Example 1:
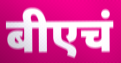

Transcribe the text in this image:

बीएचं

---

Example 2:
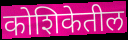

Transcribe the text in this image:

कोशिकेतील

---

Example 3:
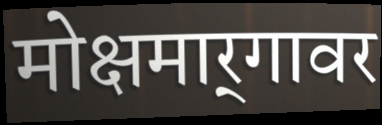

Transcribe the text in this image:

मोक्षमार्गावर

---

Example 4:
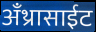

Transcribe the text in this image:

अँथ्रासाईट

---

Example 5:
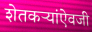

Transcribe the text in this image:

शेतकऱ्यांऐवजी